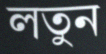
লতুন